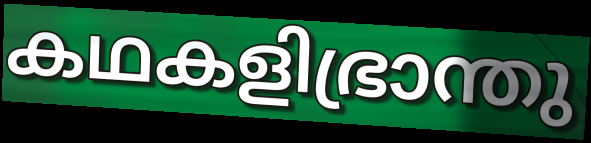
കഥകളിഭ്രാന്തു